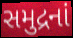
સમુદ્રનાં